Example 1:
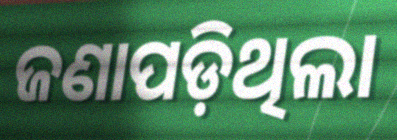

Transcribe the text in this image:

ଜଣାପଡ଼ିଥିଲା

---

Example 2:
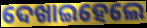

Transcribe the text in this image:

ଦେଖାଇହେଲେ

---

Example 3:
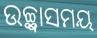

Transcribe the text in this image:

ଉଚ୍ଛ୍ଵାସମୟ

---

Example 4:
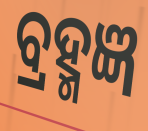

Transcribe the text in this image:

ବ୍ରହ୍ମଜ୍ଞ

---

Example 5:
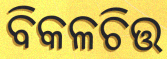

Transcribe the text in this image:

ବିକଳଚିତ୍ତ